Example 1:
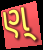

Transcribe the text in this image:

ણ્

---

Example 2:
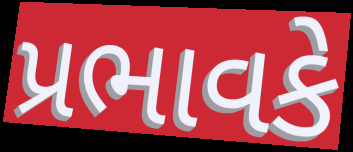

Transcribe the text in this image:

પ્રભાવકે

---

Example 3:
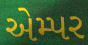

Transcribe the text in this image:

એમ્પર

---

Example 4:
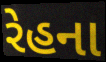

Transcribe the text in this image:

રેહના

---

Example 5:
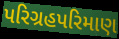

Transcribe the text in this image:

પરિગ્રહપરિમાણ